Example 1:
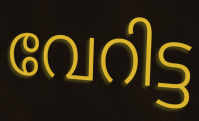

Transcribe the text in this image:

വേറിട്ട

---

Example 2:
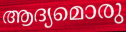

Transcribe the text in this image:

ആദ്യമൊരു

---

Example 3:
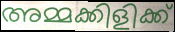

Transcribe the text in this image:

അമ്മക്കിളിക്ക്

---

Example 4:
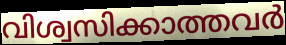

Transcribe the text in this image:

വിശ്വസിക്കാത്തവർ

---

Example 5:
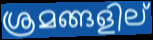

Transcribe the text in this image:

ശ്രമങ്ങളില്